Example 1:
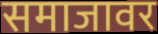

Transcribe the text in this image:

समाजावर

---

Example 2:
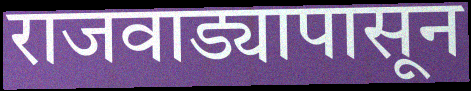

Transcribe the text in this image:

राजवाड्यापासून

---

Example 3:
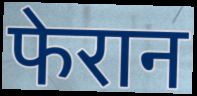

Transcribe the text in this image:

फेरान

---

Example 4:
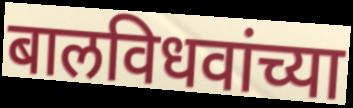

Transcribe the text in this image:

बालविधवांच्या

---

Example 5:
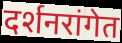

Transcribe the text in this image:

दर्शनरांगेत